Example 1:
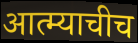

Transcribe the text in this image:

आत्म्याचीच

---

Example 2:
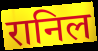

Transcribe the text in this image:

रानिल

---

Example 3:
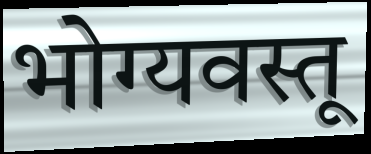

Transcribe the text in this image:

भोग्यवस्तू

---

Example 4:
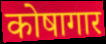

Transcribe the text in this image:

कोषागार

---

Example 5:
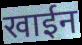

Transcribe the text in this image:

खाईन